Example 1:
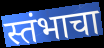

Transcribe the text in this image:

स्तंभाचा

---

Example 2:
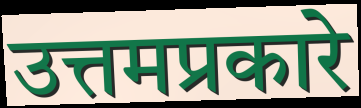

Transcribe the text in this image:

उत्तमप्रकारे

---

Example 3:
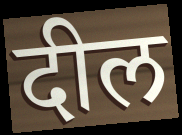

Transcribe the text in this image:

दील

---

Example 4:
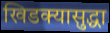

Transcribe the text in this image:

खिडक्यासुद्धा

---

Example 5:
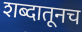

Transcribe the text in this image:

शब्दातूनच